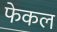
फेकल